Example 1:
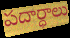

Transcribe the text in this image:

పదార్ధాలు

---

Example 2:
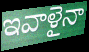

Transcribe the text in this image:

ఇవాళైనా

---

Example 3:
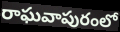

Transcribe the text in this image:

రాఘవాపురంలో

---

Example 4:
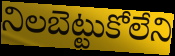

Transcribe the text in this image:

నిలబెట్టుకోలేని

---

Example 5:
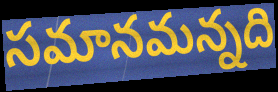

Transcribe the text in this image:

సమానమన్నది